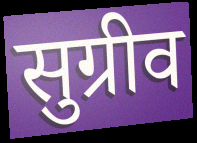
सुग्रीव